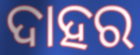
ଦାହର